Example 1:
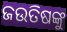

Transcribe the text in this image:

ଜଉତିଷଙ୍କୁ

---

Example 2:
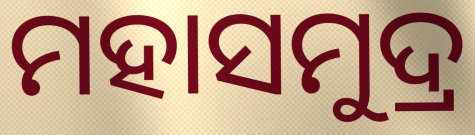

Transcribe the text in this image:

ମହାସମୁଦ୍ର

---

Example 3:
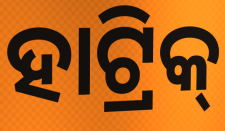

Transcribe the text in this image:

ହାଟ୍ରିକ୍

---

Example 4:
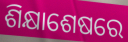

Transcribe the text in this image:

ଶିକ୍ଷାଶେଷରେ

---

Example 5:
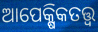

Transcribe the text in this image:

ଆପେକ୍ଷିକତତ୍ତ୍ୱ